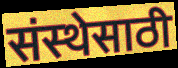
संस्थेसाठी